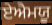
ਏਐਮਯੂ